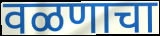
वळणाचा